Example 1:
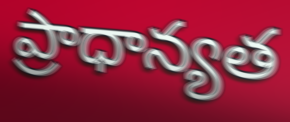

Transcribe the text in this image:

ప్రాధాన్యత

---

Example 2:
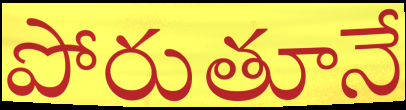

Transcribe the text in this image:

పోరుతూనే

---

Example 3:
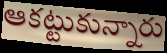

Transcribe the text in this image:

ఆకట్టుకున్నారు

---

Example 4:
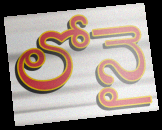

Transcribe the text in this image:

లోనై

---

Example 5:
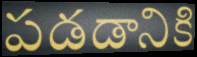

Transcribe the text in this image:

పడడానికి